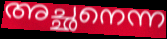
അച്ഛനെന്ന